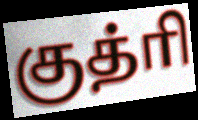
குத்ரி